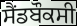
ਸੈਂਡਬੌਕਸੀ